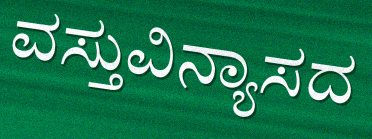
ವಸ್ತುವಿನ್ಯಾಸದ